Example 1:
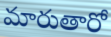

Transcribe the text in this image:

మారుతారో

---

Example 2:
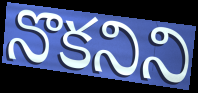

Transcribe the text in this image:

నొకనిని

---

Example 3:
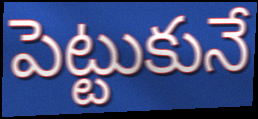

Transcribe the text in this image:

పెట్టుకునే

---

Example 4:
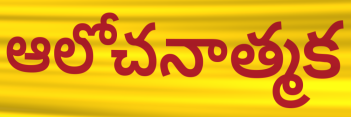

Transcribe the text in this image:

ఆలోచనాత్మక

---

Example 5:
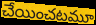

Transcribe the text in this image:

చేయించటమూ